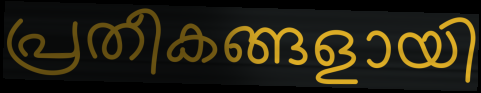
പ്രതീകങ്ങളായി